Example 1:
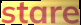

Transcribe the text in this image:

stare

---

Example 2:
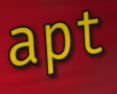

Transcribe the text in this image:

apt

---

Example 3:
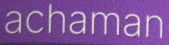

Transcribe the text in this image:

achaman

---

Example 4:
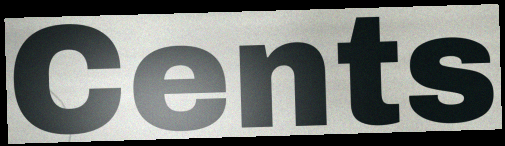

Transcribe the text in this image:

Cents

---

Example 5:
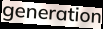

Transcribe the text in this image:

generation